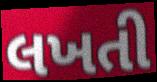
લખતી